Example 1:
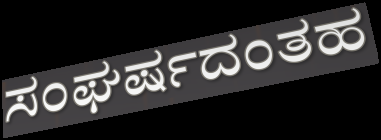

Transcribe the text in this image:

ಸಂಘರ್ಷದಂತಹ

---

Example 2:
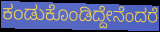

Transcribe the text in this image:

ಕಂಡುಕೊಂಡಿದ್ದೇನೆಂದರೆ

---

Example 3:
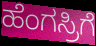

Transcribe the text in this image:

ಹೆಂಗಸ್ರಿಗೆ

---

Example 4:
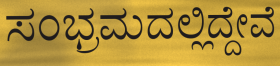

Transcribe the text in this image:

ಸಂಭ್ರಮದಲ್ಲಿದ್ದೇವೆ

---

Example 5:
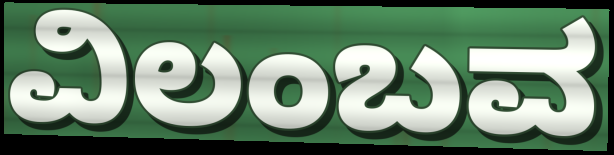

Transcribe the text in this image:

ವಿಲಂಬವ